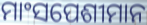
ମାଂସପେଶୀମାନ